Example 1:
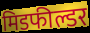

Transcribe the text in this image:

मिडफील्डर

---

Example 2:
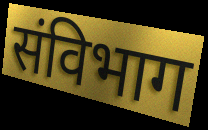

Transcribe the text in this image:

संविभाग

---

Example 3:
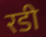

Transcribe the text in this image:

रडी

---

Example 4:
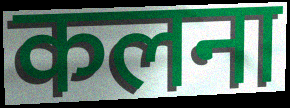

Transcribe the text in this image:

कलना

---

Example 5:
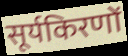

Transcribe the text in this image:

सूर्यकिरणों